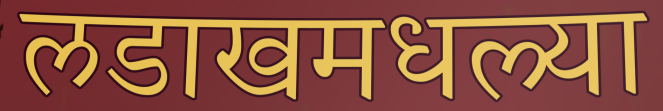
लडाखमधल्या